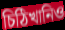
চিঠিখানিও